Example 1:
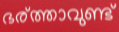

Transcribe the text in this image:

ഭര്ത്താവുണ്ട്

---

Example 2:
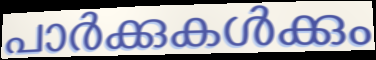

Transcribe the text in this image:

പാർക്കുകൾക്കും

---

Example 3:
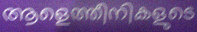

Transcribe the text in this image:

ആളെത്തീനികളുടെ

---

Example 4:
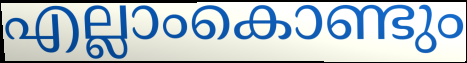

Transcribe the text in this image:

എല്ലാംകൊണ്ടും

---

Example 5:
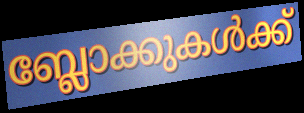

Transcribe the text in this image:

ബ്ലോക്കുകൾക്ക്